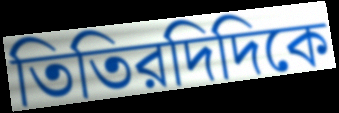
তিতিরদিদিকে